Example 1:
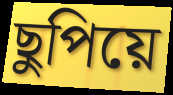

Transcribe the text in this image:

ছুপিয়ে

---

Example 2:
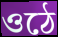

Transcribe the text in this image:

ওঠে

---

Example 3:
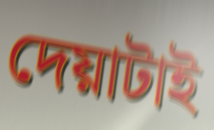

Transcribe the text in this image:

দেয়াটাই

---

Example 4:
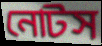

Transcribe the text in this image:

নোটস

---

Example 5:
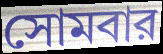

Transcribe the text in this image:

সোমবার